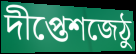
দীপ্তেশজেঠু